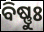
ବିଷ୍ଣୁଃ